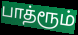
பாத்ரூம்